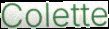
Colette